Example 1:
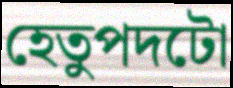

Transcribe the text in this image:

হেতুপদটো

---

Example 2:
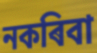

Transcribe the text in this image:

নকৰিবা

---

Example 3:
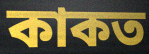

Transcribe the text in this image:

কাকত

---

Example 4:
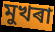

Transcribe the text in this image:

মুখৰা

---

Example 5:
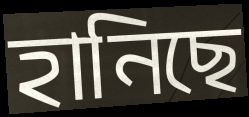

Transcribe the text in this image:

হানিছে